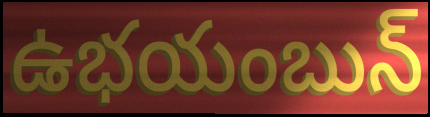
ఉభయంబున్